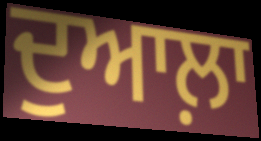
ਦੁਆਲ਼ਾ